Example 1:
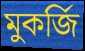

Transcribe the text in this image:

মুকর্জি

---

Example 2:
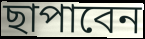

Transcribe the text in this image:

ছাপাবেন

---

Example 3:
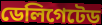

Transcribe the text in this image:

ডেলিগেটেড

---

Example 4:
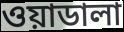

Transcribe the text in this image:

ওয়াডালা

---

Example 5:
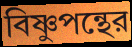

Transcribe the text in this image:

বিষ্ণুপন্থের